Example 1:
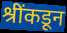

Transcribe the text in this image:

श्रींकडून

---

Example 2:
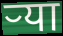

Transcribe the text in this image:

ऱ्या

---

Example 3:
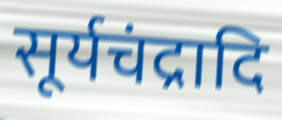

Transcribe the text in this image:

सूर्यचंद्रादि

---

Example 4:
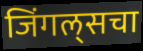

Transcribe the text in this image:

जिंगल्सचा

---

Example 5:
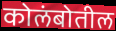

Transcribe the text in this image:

कोलंबोतील